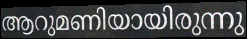
ആറുമണിയായിരുന്നു